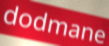
dodmane